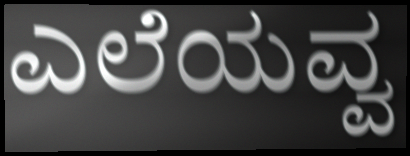
ಎಲೆಯವ್ವ